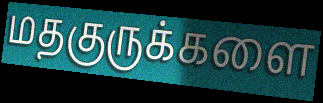
மதகுருக்களை